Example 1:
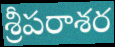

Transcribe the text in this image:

శ్రీపరాశర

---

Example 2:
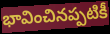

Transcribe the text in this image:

భావించినప్పటికీ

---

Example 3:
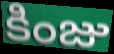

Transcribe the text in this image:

కింజు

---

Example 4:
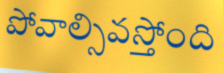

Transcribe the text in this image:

పోవాల్సివస్తోంది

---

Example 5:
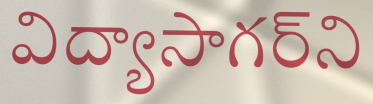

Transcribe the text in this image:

విద్యాసాగర్‌ని